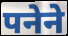
पनेने